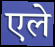
एले